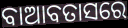
ବାଆବତାସରେ